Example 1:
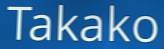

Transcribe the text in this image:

Takako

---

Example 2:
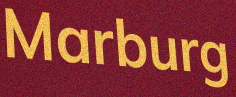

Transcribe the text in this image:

Marburg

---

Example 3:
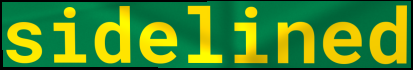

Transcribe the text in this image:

sidelined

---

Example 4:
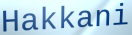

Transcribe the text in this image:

Hakkani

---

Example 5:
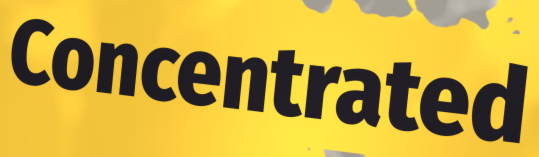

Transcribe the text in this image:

Concentrated